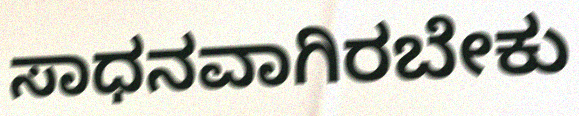
ಸಾಧನವಾಗಿರಬೇಕು